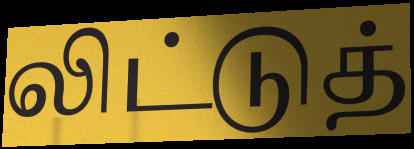
லிட்டுத்